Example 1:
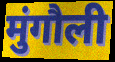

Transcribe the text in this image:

मुंगौली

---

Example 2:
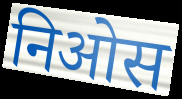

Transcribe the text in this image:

निओस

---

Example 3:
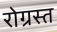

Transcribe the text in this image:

रोग्रस्त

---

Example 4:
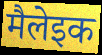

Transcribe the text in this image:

मैलेइक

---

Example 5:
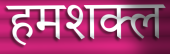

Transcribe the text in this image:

हमशक्ल